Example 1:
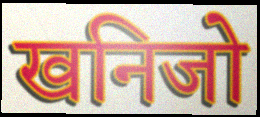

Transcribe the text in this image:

खनिजो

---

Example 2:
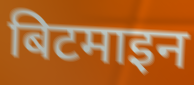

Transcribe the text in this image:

बिटमाइन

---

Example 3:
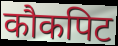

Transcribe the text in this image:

कौकपिट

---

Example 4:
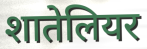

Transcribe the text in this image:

शातेलियर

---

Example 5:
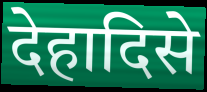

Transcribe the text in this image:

देहादिसे